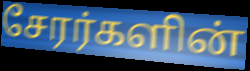
சேரர்களின்